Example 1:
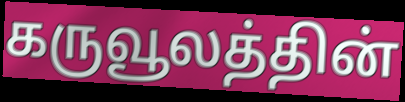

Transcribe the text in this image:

கருவூலத்தின்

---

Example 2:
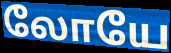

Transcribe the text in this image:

லோயே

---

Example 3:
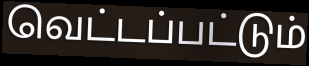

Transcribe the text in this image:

வெட்டப்பட்டும்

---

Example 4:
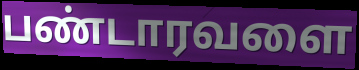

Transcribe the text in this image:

பண்டாரவளை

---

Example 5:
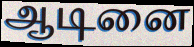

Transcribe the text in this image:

ஆடினை